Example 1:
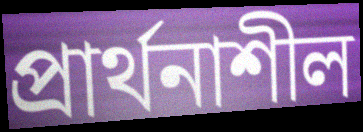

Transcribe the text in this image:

প্রার্থনাশীল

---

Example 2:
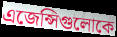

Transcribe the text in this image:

এজেন্সিগুলোকে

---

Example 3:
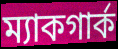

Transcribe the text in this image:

ম্যাকগার্ক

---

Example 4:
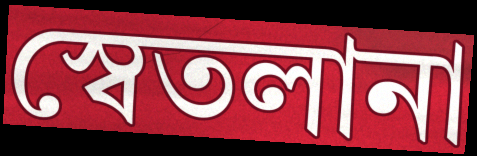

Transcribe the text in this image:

স্বেতলানা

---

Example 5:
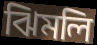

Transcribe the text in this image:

ঝিমলি